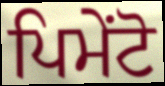
ਪਿਮੇਂਟੋ